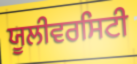
ਯੂਲੀਵਰਸਿਟੀ